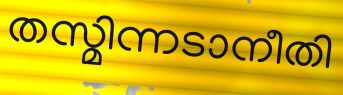
തസ്മിന്നടാനീതി